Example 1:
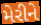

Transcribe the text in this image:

મેરીને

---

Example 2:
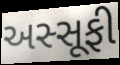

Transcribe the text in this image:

અસ્સૂફી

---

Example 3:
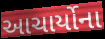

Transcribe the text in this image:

આચાર્યોના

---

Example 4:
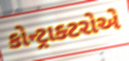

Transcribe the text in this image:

કોન્ટ્રાક્ટરોએ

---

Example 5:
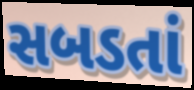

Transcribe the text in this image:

સબડતાં